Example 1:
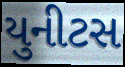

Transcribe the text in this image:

યુનીટસ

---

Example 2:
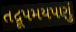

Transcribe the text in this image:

તદ્રૂપમયપણું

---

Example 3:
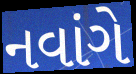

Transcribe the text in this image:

નવાંગે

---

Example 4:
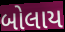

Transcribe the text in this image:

બોલાય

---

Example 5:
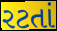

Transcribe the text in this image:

રટતાં